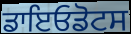
ਡਾਇਓਡੋਟਸ